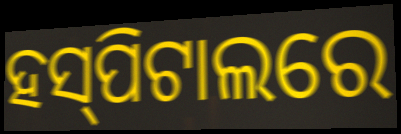
ହସ୍‌ପିଟାଲରେ